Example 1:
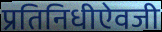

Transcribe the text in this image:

प्रतिनिधीऐवजी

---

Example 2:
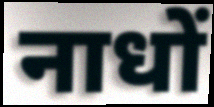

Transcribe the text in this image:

नाधों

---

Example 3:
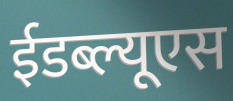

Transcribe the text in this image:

ईडब्ल्यूएस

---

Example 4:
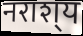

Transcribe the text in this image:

नराश्य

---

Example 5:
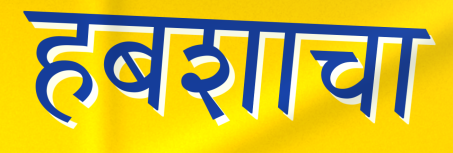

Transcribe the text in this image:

हबशाचा